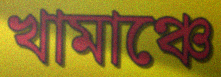
খামাঞ্চে